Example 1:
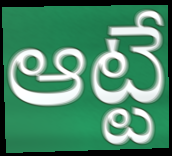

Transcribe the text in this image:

ఆట్టే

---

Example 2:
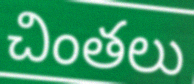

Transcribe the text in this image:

చింతలు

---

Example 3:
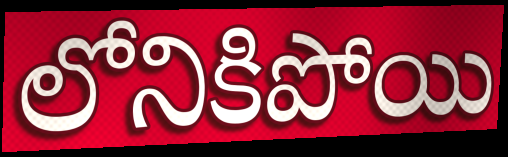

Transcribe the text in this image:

లోనికిపోయి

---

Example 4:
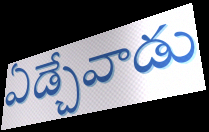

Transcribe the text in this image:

ఏడ్చేవాడు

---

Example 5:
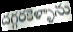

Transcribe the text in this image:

దగ్గరకెళ్ళాను